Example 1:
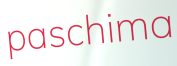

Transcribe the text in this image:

paschima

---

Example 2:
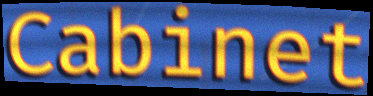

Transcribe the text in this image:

Cabinet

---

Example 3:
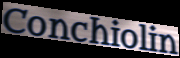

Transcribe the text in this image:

Conchiolin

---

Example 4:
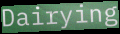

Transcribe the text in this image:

Dairying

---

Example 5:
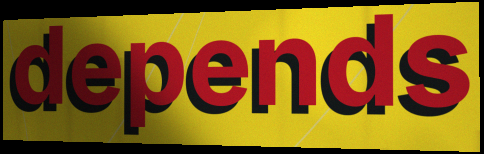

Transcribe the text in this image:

depends